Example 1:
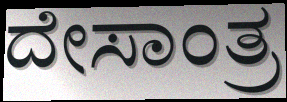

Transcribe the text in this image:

ದೇಸಾಂತ್ರ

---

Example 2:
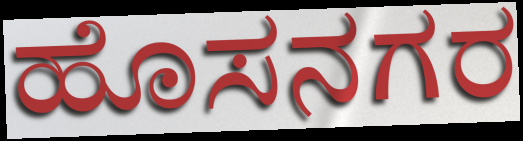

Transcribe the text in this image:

ಹೊಸನಗರ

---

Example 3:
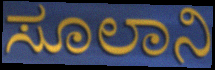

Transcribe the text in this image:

ಸೂಲಾನಿ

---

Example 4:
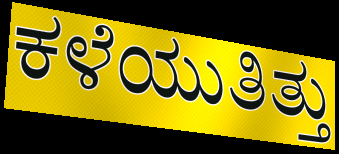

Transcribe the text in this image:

ಕಳೆಯುತಿತ್ತು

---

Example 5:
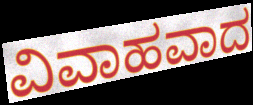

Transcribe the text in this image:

ವಿವಾಹವಾದ